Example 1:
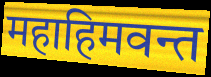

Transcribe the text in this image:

महाहिमवन्त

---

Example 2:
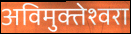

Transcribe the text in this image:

अविमुक्तेश्वरा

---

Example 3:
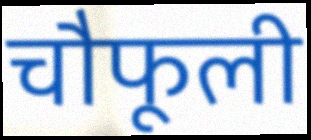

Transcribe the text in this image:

चौफूली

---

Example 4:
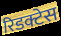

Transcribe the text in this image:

रिडक्टेस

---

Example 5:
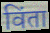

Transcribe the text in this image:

विंता